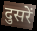
दुसरें